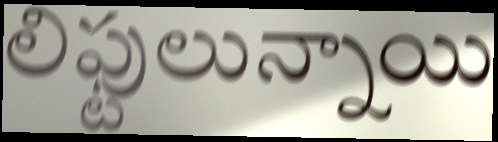
లిఫ్టులున్నాయి